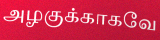
அழகுக்காகவே